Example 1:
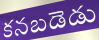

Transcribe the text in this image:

కనబడెడు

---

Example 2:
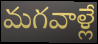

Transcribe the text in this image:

మగవాళ్లే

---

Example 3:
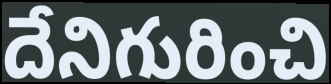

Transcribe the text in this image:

దేనిగురించి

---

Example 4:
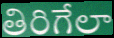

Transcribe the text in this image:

తిరిగేలా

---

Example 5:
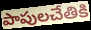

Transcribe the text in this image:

పాపులచేతికి